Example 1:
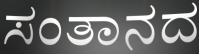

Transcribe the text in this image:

ಸಂತಾನದ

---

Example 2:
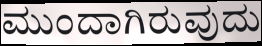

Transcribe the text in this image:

ಮುಂದಾಗಿರುವುದು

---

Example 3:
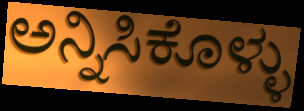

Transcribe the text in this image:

ಅನ್ನಿಸಿಕೊಳ್ಳು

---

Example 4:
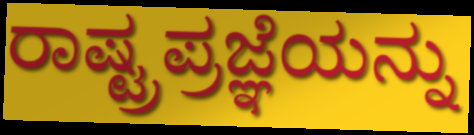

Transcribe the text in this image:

ರಾಷ್ಟ್ರಪ್ರಜ್ಞೆಯನ್ನು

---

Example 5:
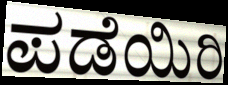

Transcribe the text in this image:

ಪಡೆಯಿರಿ